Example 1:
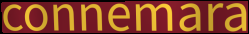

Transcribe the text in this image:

connemara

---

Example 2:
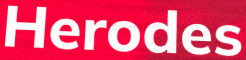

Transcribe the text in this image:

Herodes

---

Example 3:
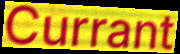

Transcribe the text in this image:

Currant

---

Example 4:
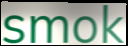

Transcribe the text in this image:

smok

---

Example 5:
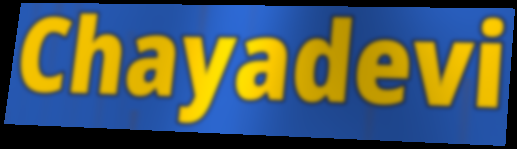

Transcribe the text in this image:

Chayadevi